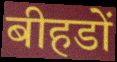
बीहडों